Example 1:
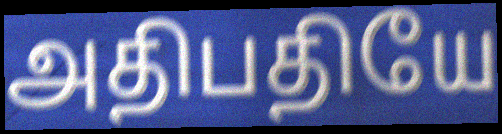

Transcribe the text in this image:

அதிபதியே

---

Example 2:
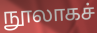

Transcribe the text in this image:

நூலாகச்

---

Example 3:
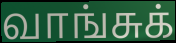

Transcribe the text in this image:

வாங்சுக்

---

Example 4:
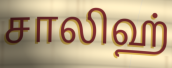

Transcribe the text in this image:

சாலிஹ்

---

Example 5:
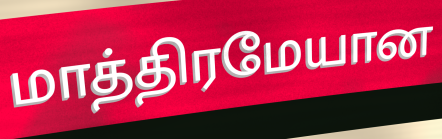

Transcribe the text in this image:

மாத்திரமேயான